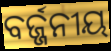
ବର୍ଜ୍ଜନୀୟ